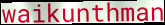
waikunthman